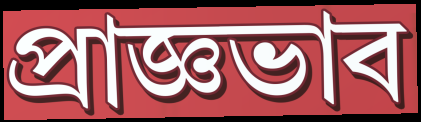
প্রাজ্ঞভাব